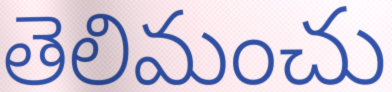
తెలిమంచు